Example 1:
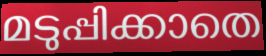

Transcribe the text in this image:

മടുപ്പിക്കാതെ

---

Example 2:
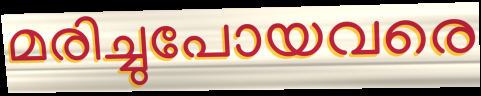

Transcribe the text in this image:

മരിച്ചുപോയവരെ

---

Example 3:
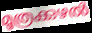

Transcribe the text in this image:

മൂത്രക്കുഴൽ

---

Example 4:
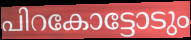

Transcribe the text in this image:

പിറകോട്ടോടും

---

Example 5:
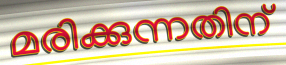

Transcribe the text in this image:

മരിക്കുന്നതിന്